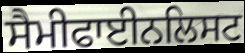
ਸੈਮੀਫਾਈਨਲਿਸਟ